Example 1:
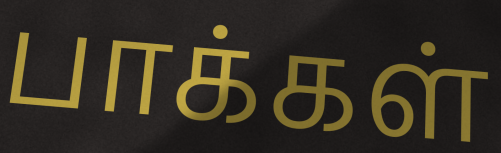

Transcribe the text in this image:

பாக்கள்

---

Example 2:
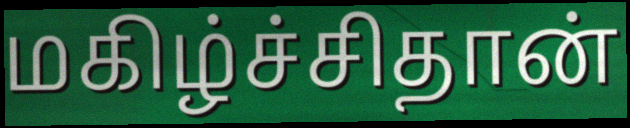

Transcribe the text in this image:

மகிழ்ச்சிதான்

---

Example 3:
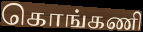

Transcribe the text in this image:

கொங்கணி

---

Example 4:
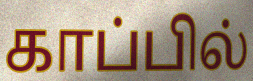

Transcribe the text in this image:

காப்பில்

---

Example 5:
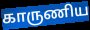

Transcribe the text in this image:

காருணிய